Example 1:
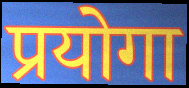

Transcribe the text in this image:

प्रयोगा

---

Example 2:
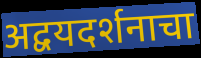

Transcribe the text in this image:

अद्वयदर्शनाचा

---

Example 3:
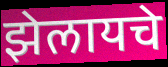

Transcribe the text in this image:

झेलायचे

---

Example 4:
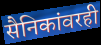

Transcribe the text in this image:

सैनिकांवरही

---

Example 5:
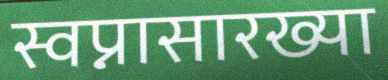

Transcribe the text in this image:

स्वप्नासारख्या